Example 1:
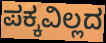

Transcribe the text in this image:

ಪಕ್ಕವಿಲ್ಲದ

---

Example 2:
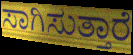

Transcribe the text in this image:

ಸಾಗಿಸುತ್ತಾರೆ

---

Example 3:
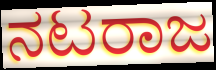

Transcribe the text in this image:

ನಟರಾಜ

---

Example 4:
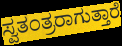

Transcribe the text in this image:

ಸ್ವತಂತ್ರರಾಗುತ್ತಾರೆ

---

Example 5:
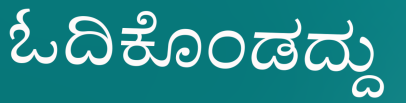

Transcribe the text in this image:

ಓದಿಕೊಂಡದ್ದು